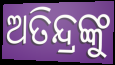
ଅତିନ୍ଦ୍ରଙ୍କୁ